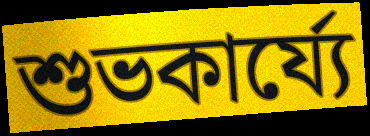
শুভকার্য্যে